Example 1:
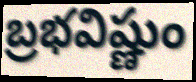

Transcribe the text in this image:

బ్రభవిష్ణుం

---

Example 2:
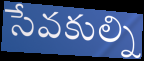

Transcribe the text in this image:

సేవకుల్ని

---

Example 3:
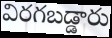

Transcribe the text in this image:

విరగబడ్డారు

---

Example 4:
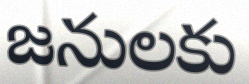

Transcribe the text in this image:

జనులకు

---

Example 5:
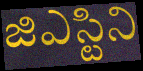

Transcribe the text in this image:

జిఎస్టిని